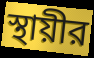
স্থায়ীর